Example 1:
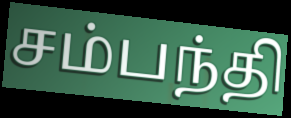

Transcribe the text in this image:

சம்பந்தி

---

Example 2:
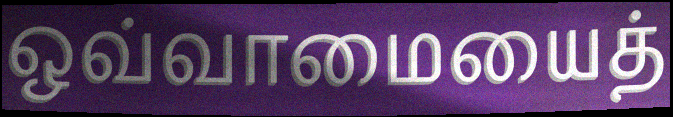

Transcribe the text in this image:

ஒவ்வாமையைத்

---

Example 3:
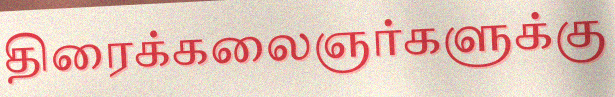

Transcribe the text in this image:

திரைக்கலைஞர்களுக்கு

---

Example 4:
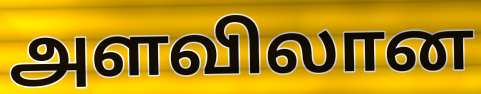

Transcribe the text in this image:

அளவிலான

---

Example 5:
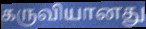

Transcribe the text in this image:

கருவியானது